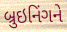
બ્રુઇનિંગને